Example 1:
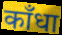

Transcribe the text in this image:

काँधा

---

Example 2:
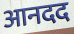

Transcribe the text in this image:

आनदद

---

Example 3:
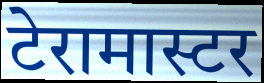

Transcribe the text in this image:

टेरामास्टर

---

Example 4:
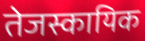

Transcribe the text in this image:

तेजस्कायिक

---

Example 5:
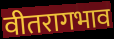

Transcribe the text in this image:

वीतरागभाव